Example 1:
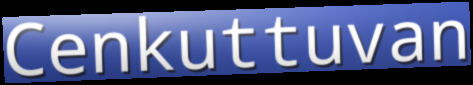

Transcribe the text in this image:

Cenkuttuvan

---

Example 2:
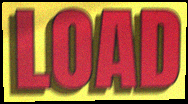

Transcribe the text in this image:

LOAD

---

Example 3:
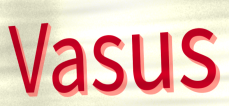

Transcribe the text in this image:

Vasus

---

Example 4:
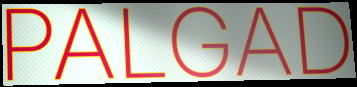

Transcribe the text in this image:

PALGAD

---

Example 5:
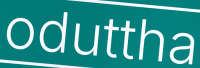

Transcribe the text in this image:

oduttha